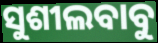
ସୁଶୀଲବାବୁ